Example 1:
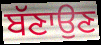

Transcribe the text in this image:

ਬੱਣਾਉਣ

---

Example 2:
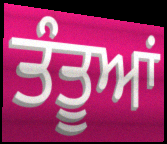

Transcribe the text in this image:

ਤੰਤੂਆਂ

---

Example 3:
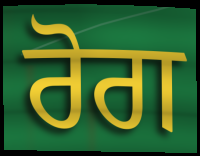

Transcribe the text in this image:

ਰੋਗ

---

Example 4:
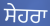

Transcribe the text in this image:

ਸੇਹਰਾ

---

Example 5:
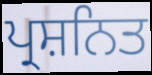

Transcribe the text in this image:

ਪ੍ਰਸ਼ਨਿਤ